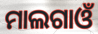
ମାଲଗାଓଁ